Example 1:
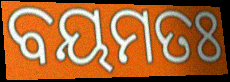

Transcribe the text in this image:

ବୟମତଃ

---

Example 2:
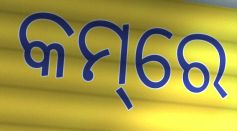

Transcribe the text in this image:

କମ୍‌ରେ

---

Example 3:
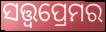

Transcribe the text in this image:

ସତ୍ତ୍ୱପ୍ରେମର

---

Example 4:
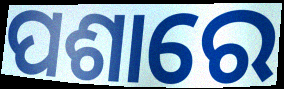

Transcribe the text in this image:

ପଶାରେ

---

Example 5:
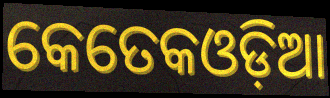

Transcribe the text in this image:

କେତେକଓଡ଼ିଆ